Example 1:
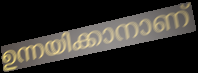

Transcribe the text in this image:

ഉന്നയിക്കാനാണ്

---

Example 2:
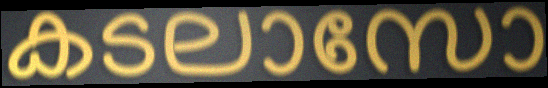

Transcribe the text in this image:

കടലാസോ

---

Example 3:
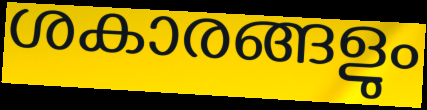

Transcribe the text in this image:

ശകാരങ്ങളും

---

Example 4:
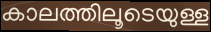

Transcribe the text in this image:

കാലത്തിലൂടെയുള്ള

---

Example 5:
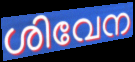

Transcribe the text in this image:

ശിവേന